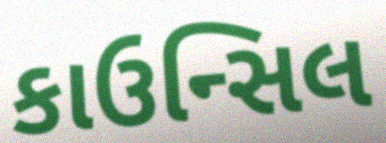
કાઉન્સિલ